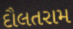
દૌલતરામ